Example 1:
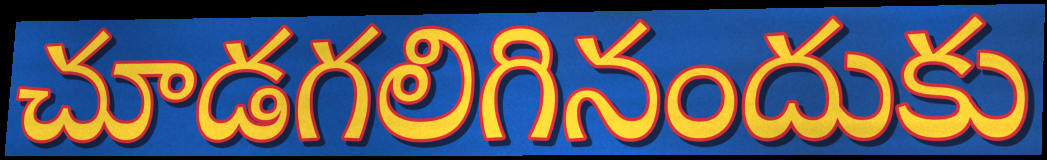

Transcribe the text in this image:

చూడగలిగినందుకు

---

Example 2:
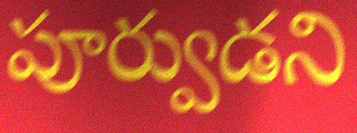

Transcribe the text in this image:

పూర్వుడని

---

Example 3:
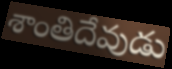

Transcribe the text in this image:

శాంతిదేవుడు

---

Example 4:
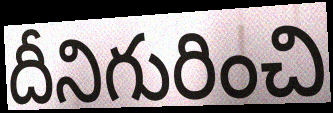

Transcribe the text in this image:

దీనిగురించి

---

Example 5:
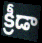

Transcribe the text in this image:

క్రీడా